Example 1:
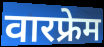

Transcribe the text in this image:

वारफ्रेम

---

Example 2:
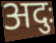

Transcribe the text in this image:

अदुः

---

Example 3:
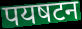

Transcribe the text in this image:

पयषटन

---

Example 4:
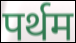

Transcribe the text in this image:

पर्थम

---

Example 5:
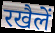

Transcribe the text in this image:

रखैलें